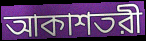
আকাশতরী